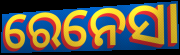
ରେନେସା